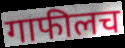
गाफीलच